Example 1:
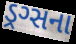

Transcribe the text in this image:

ડ્રગ્સના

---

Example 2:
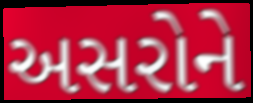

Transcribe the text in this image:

અસરોને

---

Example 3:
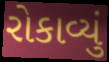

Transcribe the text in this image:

રોકાવ્યું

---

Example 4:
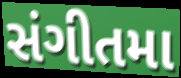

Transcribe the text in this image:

સંગીતમા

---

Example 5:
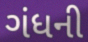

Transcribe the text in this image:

ગંધની